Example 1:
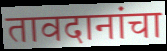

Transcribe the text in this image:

तावदानांचा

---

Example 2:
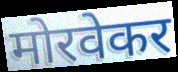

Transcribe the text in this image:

मोरवेकर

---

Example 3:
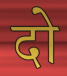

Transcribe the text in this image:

दो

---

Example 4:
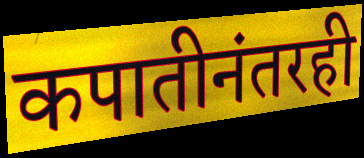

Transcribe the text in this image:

कपातीनंतरही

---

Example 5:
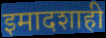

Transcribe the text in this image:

इमादशाही